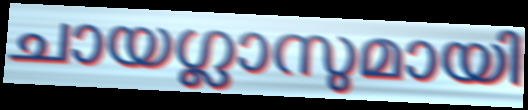
ചായഗ്ലാസുമായി